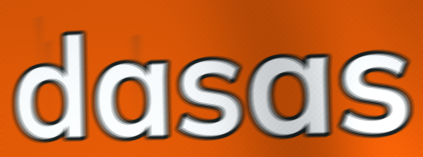
dasas